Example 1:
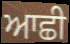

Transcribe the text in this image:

ਆਛੀ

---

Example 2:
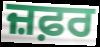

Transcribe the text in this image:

ਜ਼ਫ਼ਰ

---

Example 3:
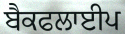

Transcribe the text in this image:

ਬੈਕਫਲਾਈਪ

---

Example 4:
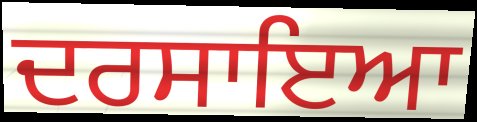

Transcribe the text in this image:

ਦਰਸਾਇਆ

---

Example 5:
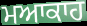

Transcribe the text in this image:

ਮਆਕਾਹ